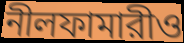
নীলফামারীও